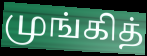
முங்கித்